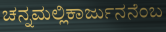
ಚನ್ನಮಲ್ಲಿಕಾರ್ಜುನನೆಂಬ